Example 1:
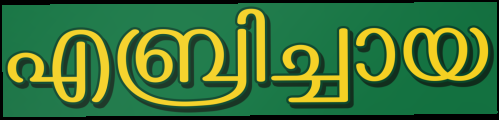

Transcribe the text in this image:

എബ്രിച്ചായ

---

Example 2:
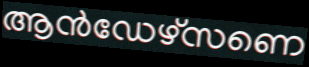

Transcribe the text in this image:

ആൻഡേഴ്സണെ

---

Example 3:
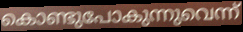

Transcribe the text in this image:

കൊണ്ടുപോകുന്നുവെന്ന്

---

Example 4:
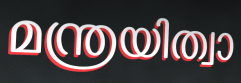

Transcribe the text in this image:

മന്ത്രയിത്വാ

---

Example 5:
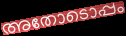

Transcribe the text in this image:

അതോടൊപ്പം